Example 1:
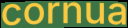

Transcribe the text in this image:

cornua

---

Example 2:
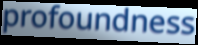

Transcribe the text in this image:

profoundness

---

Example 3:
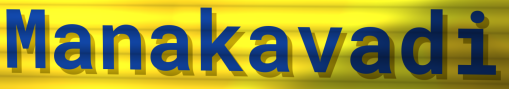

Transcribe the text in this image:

Manakavadi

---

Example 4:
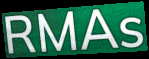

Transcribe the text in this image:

RMAs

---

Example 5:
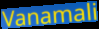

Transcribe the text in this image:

Vanamali